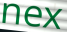
nex